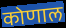
कोणाल